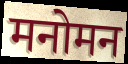
मनोमन